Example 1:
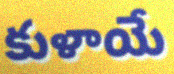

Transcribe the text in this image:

కుళాయే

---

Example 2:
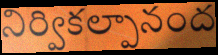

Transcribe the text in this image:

నిర్వికల్పానంద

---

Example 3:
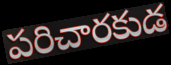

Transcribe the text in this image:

పరిచారకుడ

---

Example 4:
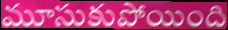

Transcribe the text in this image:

మూసుకుపోయింది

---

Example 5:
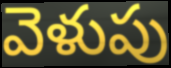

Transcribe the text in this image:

వెళుపు